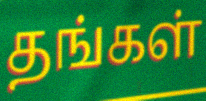
தங்கள்